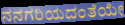
ನನಗರಿಯದಂತೆಯೇ